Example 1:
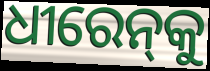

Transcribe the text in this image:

ଧୀରେନ୍‌କୁ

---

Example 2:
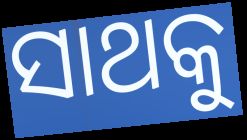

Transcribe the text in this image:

ସାଥକୁ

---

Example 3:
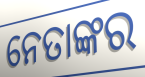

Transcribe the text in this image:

ନେତାଙ୍କର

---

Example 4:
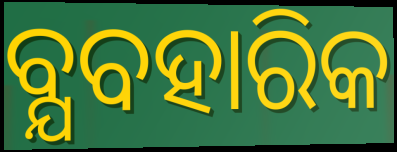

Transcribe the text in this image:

ବ୍ଯବହାରିକ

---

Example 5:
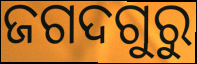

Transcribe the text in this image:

ଜଗଦଗୁରୁ